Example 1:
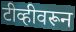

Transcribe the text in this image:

टीव्हीवरून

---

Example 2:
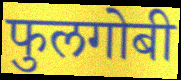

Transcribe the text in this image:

फुलगोबी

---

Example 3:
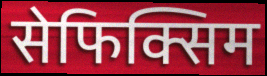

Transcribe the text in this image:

सेफिक्सिम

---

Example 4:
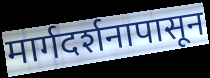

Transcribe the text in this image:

मार्गदर्शनापासून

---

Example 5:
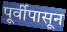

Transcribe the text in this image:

पूर्वीपासून